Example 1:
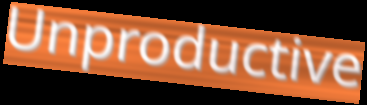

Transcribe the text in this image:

Unproductive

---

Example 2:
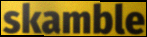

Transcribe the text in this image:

skamble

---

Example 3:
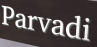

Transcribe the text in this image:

Parvadi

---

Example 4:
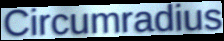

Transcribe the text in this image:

Circumradius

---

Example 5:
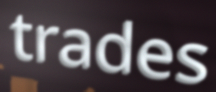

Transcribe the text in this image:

trades